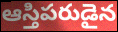
ఆస్తిపరుడైన